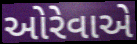
ઓરેવાએ